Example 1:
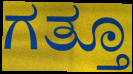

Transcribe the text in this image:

ಗತ್ತೂ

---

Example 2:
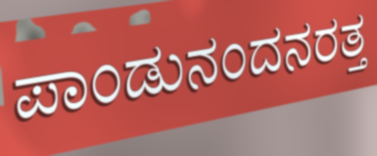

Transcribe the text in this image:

ಪಾಂಡುನಂದನರತ್ತ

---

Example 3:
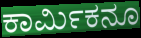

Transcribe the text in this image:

ಕಾರ್ಮಿಕನೂ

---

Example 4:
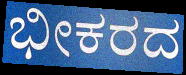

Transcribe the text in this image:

ಭೀಕರದ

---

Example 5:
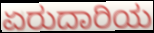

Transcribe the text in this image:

ಏರುದಾರಿಯ